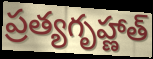
ప్రత్యగృహ్ణాత్